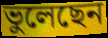
ভুলেছেন